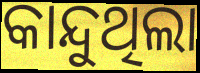
କାନ୍ଦୁଥିଲା